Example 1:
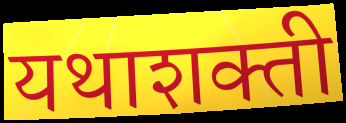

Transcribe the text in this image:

यथाशक्‍ती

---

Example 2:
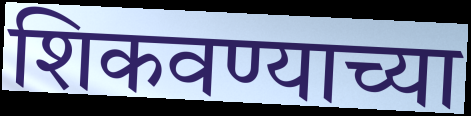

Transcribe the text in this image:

शिकवण्याच्या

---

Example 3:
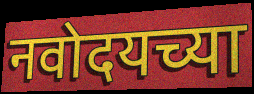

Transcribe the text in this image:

नवोदयच्या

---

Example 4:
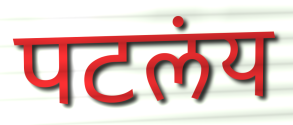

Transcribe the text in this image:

पटलंय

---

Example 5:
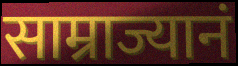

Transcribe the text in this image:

साम्राज्यानं